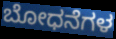
ಬೋಧನೆಗಳ